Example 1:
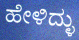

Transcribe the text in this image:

ಹೇಳಿದ್ಳು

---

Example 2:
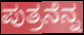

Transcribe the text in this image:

ಪುತ್ರನೆನ್ನ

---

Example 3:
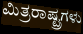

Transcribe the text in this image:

ಮಿತ್ರರಾಷ್ಟ್ರಗಳು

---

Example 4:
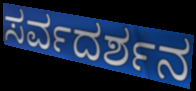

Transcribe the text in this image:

ಸರ್ವದರ್ಶನ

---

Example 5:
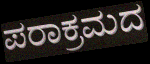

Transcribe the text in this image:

ಪರಾಕ್ರಮದ